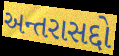
અન્તરાસદ્દો